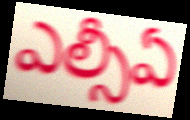
ఎల్సీఏ